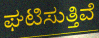
ಘಟಿಸುತ್ತಿವೆ